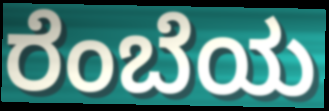
ರೆಂಬೆಯ